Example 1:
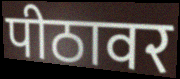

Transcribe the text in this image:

पीठावर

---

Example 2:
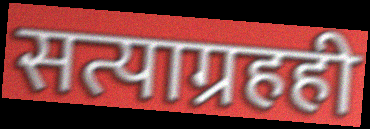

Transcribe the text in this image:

सत्याग्रहही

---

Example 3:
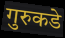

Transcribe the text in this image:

गुरुकडे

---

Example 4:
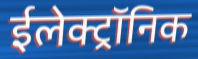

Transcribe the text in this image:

ईलेक्ट्रॉनिक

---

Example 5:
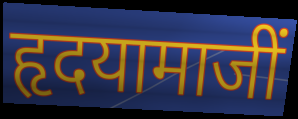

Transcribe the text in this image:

हृदयामाजीं